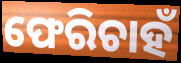
ଫେରିଚାହଁ